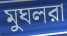
মুঘলরা